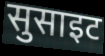
सुसाइट